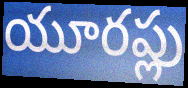
యూరప్లు